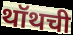
थॉथची